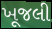
ખૂજલી